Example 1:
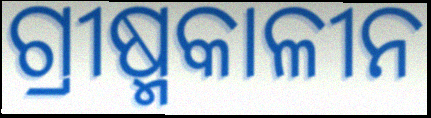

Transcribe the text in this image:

ଗ୍ରୀଷ୍ମକାଳୀନ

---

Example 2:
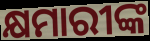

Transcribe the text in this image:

କ୍ଷମାରୀଙ୍କ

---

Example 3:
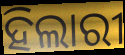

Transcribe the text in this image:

ହିଲାରୀ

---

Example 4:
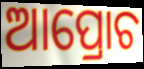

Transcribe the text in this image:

ଆପ୍ରୋଚ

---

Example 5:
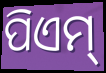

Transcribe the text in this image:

ପିଏମ୍